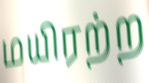
மயிரற்ற